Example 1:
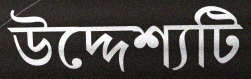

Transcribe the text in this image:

উদ্দেশ্যটি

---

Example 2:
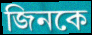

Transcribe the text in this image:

জিনকে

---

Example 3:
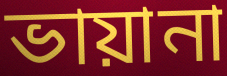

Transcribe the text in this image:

ভায়ানা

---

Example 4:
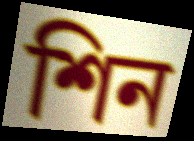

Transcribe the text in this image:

শিন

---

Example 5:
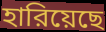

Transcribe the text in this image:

হারিয়েছে